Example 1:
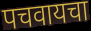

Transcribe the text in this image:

पचवायचा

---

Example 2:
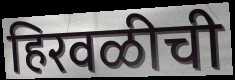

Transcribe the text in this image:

हिरवळीची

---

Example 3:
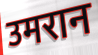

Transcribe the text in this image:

उमरान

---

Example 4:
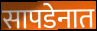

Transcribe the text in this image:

सापडेनात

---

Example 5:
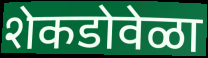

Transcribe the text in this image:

शेकडोवेळा